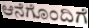
ಆನೆಗೊಂದಿಗೆ